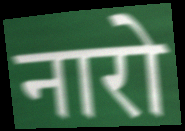
नारो